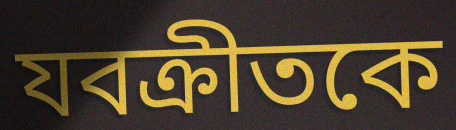
যবক্রীতকে